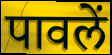
पावलें